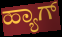
ಹ್ಯಾಗ್